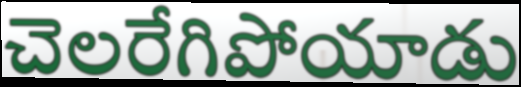
చెలరేగిపోయాడు